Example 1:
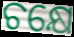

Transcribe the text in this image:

ଚକ୍ଷେ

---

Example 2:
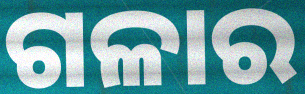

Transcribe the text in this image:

ଗଳାର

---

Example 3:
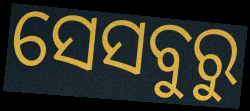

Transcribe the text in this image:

ସେସବୁରୁ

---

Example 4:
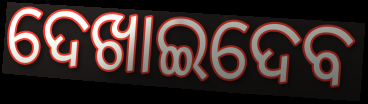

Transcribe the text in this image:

ଦେଖାଇଦେବ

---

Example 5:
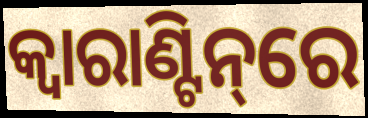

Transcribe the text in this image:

କ୍ବାରାଣ୍ଟିନ୍‌ରେ